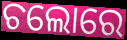
ଚଲୋରେ